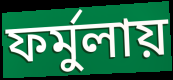
ফর্মুলায়